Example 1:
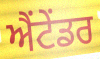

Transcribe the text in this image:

ਐਂਟੇਂਡਰ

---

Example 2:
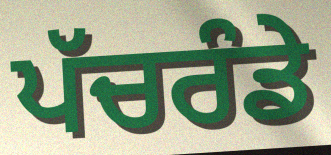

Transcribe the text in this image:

ਪੱਚਰੰਡੇ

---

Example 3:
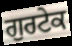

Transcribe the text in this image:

ਗੁਰਟੇਕ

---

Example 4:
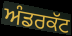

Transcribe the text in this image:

ਅੰਡਰਕੱਟ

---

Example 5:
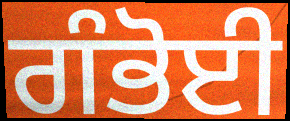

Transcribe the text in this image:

ਗੰਭੋਈ